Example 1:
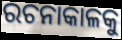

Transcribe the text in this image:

ରଚନାକାଳକୁ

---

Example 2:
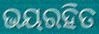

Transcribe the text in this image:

ଭୟରହିତ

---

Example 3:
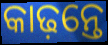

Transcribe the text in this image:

କାଢ଼ନ୍ତେ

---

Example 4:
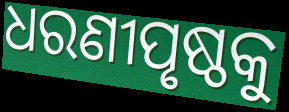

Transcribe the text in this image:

ଧରଣୀପୃଷ୍ଠକୁ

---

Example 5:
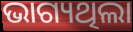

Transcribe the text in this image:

ଭାଗ୍ୟଥିଲା